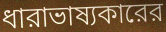
ধারাভাষ্যকারের